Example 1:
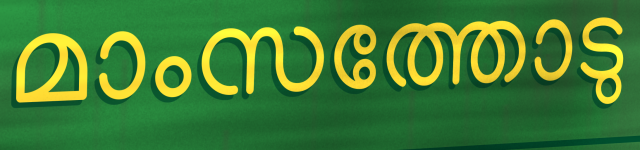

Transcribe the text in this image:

മാംസത്തോടു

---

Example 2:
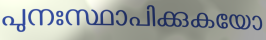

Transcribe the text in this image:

പുനഃസ്ഥാപിക്കുകയോ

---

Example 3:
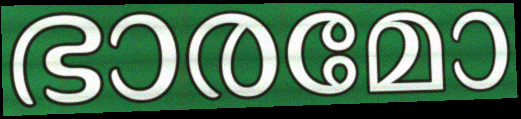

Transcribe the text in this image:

ഭാരമോ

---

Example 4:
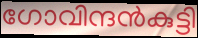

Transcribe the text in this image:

ഗോവിന്ദൻകുട്ടി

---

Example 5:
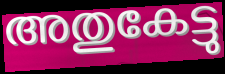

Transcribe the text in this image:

അതുകേട്ടു